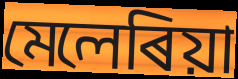
মেলেৰিয়া